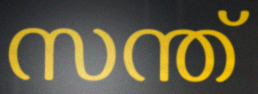
സന്ത്